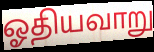
ஓதியவாறு